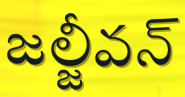
జల్జీవన్